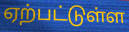
ஏற்பட்டுள்ள